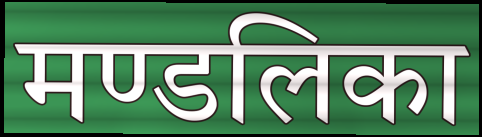
मण्डलिका